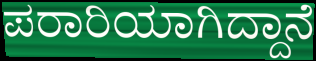
ಪರಾರಿಯಾಗಿದ್ದಾನೆ